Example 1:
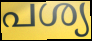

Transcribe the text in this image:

പശ്യ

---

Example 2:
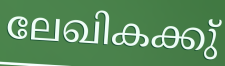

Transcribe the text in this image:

ലേഖികക്കു്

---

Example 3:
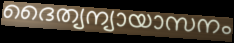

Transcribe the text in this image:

ദൈത്യന്യായാസനം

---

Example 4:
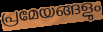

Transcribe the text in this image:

പ്രമേയങ്ങളും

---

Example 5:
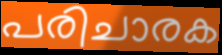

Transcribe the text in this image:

പരിചാരക